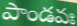
పాండవః